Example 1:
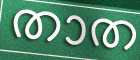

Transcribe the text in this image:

താത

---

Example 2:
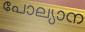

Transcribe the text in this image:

പോല്യാന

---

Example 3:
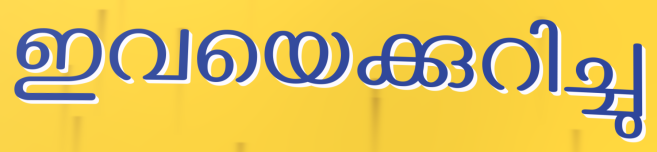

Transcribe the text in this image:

ഇവയെക്കുറിച്ചു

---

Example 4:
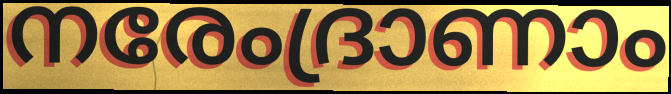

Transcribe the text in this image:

നരേംദ്രാണാം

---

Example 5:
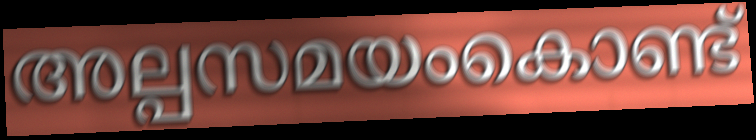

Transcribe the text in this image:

അല്പസമയംകൊണ്ട്